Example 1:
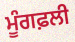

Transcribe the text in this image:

ਮੂੰਗਫ਼ਲੀ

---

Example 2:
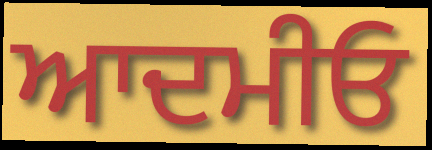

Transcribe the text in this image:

ਆਦਮੀਓ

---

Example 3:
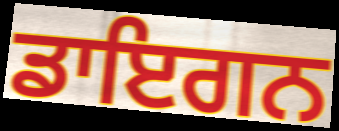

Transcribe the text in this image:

ਡਾਇਗਨ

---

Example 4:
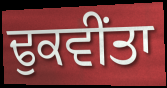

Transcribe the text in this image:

ਢੁਕਵੀਂਤਾ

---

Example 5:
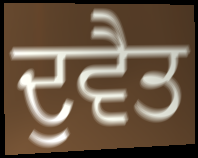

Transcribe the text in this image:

ਦੁਵੈਤ